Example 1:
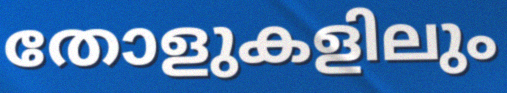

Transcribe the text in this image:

തോളുകളിലും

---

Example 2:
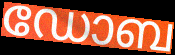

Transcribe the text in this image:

ഡോബ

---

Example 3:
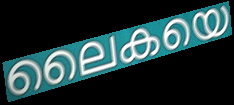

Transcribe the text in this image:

ലൈകയെ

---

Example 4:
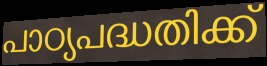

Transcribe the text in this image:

പാഠ്യപദ്ധതിക്ക്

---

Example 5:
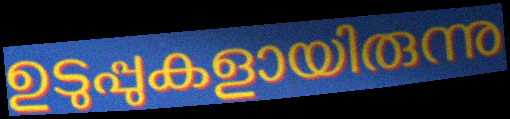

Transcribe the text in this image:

ഉടുപ്പുകളായിരുന്നു